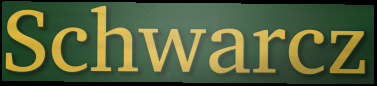
Schwarcz